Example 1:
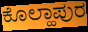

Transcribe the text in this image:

ಕೊಲ್ಹಾಪುರ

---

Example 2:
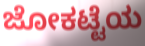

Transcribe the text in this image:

ಜೋಕಟ್ಟೆಯ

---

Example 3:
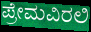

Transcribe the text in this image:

ಪ್ರೇಮವಿರಲಿ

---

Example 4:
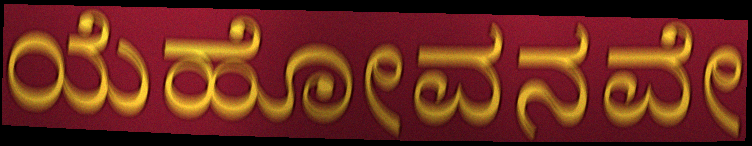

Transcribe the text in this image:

ಯೆಹೋವನವೇ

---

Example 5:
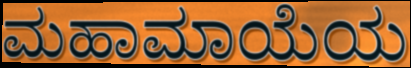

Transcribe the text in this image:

ಮಹಾಮಾಯೆಯ